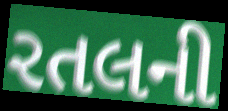
રતલની